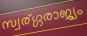
സ്വര്ഗ്ഗരാജ്യം